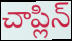
చాప్లిన్